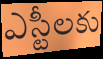
ఎస్టీలకు